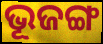
ଭୂଜଙ୍ଗ